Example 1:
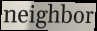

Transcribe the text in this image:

neighbor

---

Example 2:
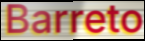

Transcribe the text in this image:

Barreto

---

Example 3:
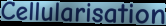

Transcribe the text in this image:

Cellularisation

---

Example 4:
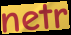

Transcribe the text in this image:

netr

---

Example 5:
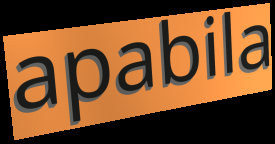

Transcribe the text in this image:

apabila